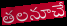
తలనూచే